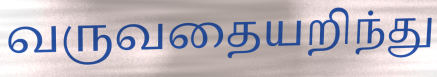
வருவதையறிந்து